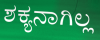
ಶಕ್ಯನಾಗಿಲ್ಲ